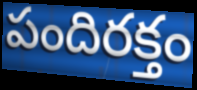
పందిరక్తం